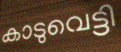
കാടുവെട്ടി